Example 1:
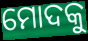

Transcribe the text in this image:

ମୋଦକୁ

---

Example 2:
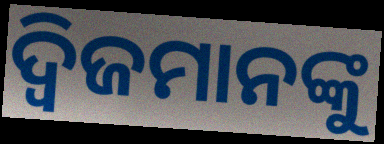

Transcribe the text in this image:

ଦ୍ଵିଜମାନଙ୍କୁ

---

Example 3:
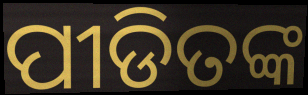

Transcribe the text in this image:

ପୀଡିତଙ୍କ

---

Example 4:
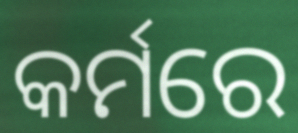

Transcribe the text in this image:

କର୍ମରେ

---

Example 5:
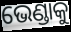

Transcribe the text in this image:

ଭେଣ୍ଡାକୁ